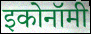
इकोनॉमी